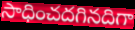
సాధించదగినదిగా